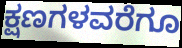
ಕ್ಷಣಗಳವರೆಗೂ